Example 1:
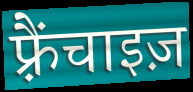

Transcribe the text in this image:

फ़्रैंचाइज़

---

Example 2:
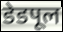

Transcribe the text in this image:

डेडपूल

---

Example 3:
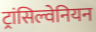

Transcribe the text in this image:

ट्रांसिल्वेनियन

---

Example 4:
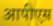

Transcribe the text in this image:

आपीएस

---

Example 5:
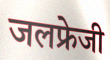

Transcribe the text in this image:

जलफ्रेजी